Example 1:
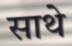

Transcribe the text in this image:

साथे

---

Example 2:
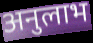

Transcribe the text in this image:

अनुलाभ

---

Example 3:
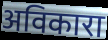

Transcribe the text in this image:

अविकारा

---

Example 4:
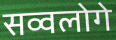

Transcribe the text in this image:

सव्वलोगे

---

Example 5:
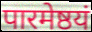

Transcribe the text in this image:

पारमेष्ठयं